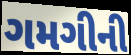
ગમગીની